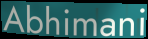
Abhimani